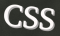
CSS